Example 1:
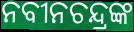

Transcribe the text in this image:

ନବୀନଚନ୍ଦ୍ରଙ୍କ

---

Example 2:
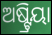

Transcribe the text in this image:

ଅଷ୍ଟ୍ରିୟା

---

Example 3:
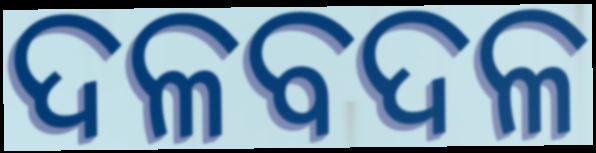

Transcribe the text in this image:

ଦଳବଦଳ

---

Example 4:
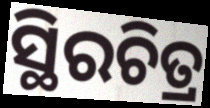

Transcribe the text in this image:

ସ୍ଥିରଚିତ୍ର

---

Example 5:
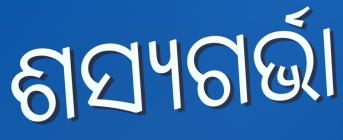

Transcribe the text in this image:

ଶସ୍ୟଗର୍ଭା